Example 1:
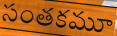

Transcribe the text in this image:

సంతకమూ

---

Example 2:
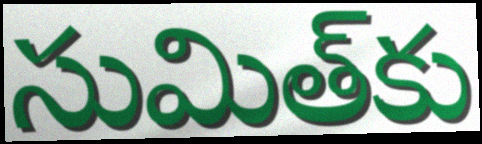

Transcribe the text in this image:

సుమిత్‌కు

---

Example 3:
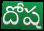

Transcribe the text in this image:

దోష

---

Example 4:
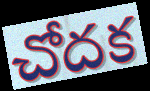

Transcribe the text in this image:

చోదక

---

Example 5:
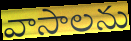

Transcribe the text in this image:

వాసాలను